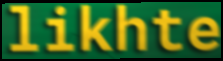
likhte